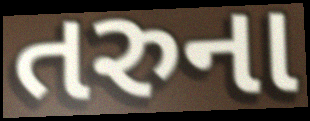
તરુના